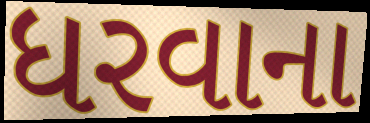
ધરવાના